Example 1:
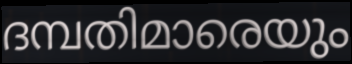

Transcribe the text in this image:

ദമ്പതിമാരെയും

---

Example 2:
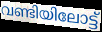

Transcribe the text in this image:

വണ്ടിയിലോട്ട്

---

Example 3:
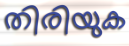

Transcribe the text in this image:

തിരിയുക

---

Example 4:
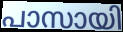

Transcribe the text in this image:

പാസായി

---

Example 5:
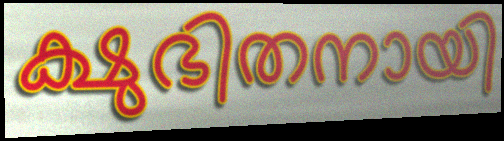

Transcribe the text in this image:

ക്ഷുഭിതനായി